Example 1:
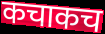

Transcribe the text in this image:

कचाकच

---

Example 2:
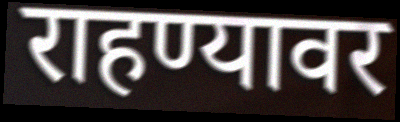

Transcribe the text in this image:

राहण्यावर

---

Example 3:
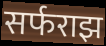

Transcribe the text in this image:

सर्फराझ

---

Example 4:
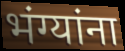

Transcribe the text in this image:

भंग्यांना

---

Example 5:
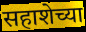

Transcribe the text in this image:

सहाशेच्या